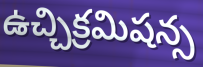
ఉచ్చిక్రమిషన్స